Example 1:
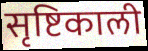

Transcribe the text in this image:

सृष्टिकाली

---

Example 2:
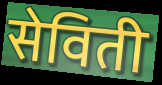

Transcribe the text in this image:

सेविती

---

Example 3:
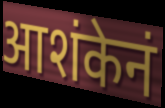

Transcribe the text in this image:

आशंकेनं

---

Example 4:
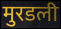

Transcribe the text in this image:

मुरडली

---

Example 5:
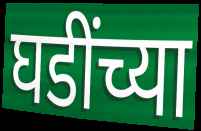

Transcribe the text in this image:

घडींच्या